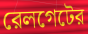
রেলগেটের